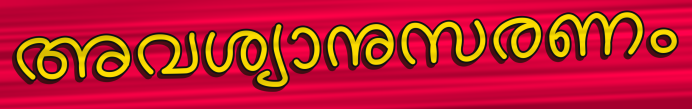
അവശ്യാനുസരണം